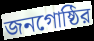
জনগোষ্ঠির